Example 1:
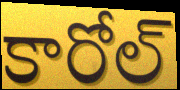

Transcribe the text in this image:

కారోల్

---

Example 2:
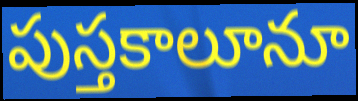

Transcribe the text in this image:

పుస్తకాలూనూ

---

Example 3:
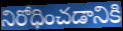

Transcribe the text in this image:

నిరోధించడానికి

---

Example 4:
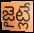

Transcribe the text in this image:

జైట్లే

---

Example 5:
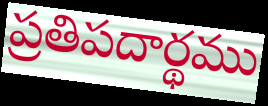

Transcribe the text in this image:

ప్రతిపదార్థము